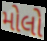
મોલો